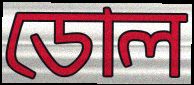
ডোল